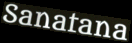
Sanatana